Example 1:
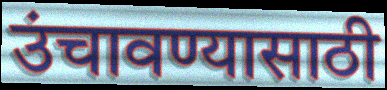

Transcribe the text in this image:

उंचावण्यासाठी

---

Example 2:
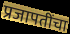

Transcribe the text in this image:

प्रजापतींचा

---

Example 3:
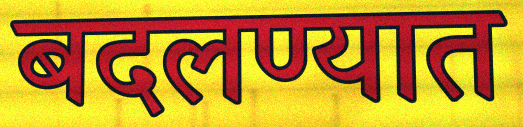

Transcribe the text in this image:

बदलण्यात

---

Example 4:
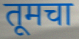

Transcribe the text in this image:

तूमचा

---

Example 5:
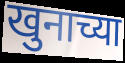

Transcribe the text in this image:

खुनाच्या